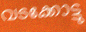
വടക്കോട്ടു